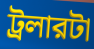
ট্রলারটা